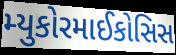
મ્યુકોરમાઈકોસિસ